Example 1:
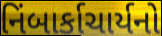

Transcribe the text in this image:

નિંબાર્કાચાર્યનો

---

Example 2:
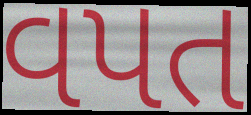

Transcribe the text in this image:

વપત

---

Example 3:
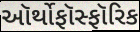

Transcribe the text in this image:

ઑર્થોફૉસ્ફૉરિક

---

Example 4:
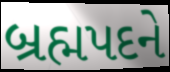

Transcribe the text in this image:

બ્રહ્મપદને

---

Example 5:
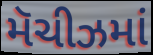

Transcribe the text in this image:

મૅચીઝમાં